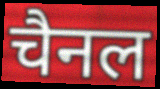
चैनल